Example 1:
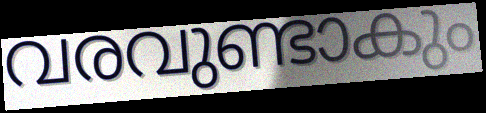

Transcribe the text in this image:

വരവുണ്ടാകും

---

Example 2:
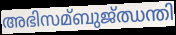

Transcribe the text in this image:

അഭിസമ്ബുജ്ഝന്തി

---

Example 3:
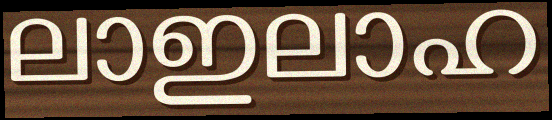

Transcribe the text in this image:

ലാഇലാഹ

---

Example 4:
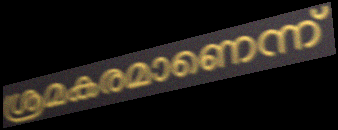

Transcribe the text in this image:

ശ്രമകരമാണെന്ന്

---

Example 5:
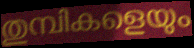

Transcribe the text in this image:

തുമ്പികളെയും